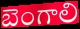
బెంగాలి